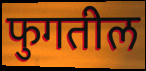
फुगतील